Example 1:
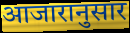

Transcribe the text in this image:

आजारानुसार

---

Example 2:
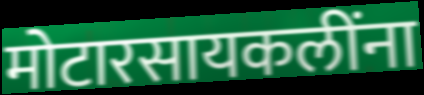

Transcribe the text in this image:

मोटारसायकलींना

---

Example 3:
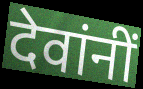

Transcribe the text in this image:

देवांनीं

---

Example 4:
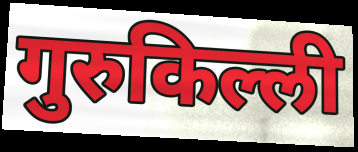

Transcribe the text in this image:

गुरुकिल्ली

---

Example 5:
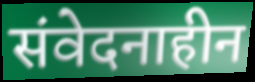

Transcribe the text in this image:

संवेदनाहीन